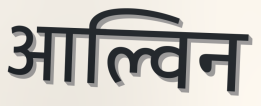
आल्विन